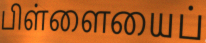
பிள்ளையைப்